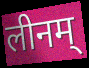
लीनम्